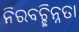
ନିରବଚ୍ଛିନ୍ନତା